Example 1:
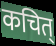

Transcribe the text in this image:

कचित्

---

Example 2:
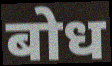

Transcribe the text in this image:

बोध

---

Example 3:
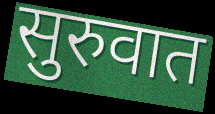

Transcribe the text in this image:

सुरुवात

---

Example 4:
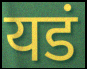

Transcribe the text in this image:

यडं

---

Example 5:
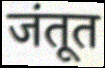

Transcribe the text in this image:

जंतूत